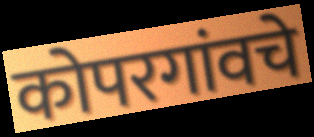
कोपरगांवचे